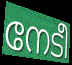
നേടീ